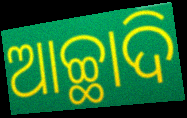
ଆଚ୍ଛାଦି